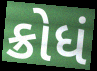
ક્રોધં